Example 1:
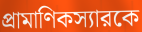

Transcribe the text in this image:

প্রামাণিকস্যারকে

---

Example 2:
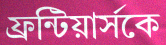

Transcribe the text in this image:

ফ্রন্টিয়ার্সকে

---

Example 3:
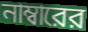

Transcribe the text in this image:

নাম্বারের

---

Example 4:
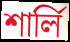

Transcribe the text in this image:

শার্লি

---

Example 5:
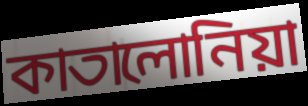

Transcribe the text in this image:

কাতালোনিয়া